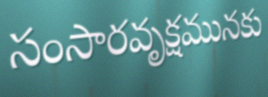
సంసారవృక్షమునకు